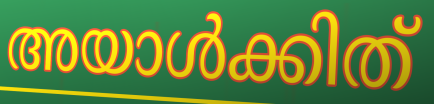
അയാൾക്കിത്